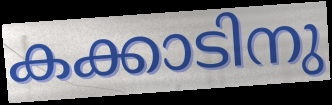
കക്കാടിനു